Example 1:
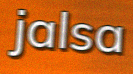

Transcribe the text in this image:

jalsa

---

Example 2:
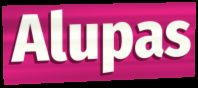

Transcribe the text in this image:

Alupas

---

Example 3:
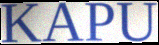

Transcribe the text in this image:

KAPU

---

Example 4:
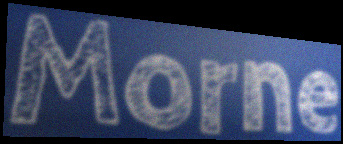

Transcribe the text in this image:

Morne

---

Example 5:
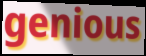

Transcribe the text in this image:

genious